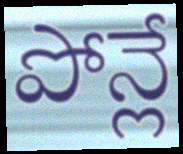
పోన్లే